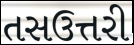
તસઉત્તરી